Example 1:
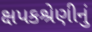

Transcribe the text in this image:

ક્ષપકશ્રેણીનું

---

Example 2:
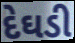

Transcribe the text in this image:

દેઘડી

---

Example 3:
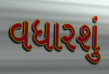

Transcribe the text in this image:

વધારશું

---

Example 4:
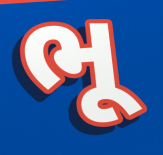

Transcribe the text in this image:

ભૂ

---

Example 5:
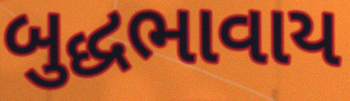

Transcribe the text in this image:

બુદ્ધભાવાય